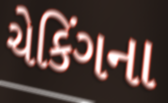
ચેકિંગના